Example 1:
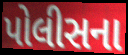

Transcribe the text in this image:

પોલીસના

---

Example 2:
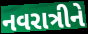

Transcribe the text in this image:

નવરાત્રીને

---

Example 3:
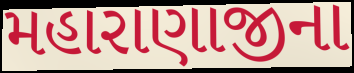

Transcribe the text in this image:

મહારાણાજીના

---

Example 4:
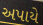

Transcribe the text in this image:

અપાયે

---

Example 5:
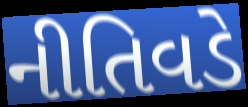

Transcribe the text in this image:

નીતિવડે